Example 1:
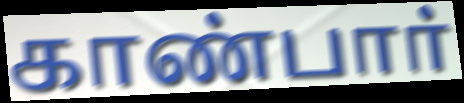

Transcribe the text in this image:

காண்பார்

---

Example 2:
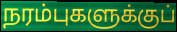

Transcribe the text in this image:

நரம்புகளுக்குப்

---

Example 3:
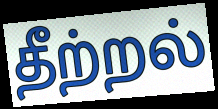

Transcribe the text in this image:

தீற்றல்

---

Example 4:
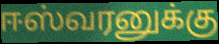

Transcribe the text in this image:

ஈஸ்வரனுக்கு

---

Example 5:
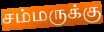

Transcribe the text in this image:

சம்மருக்கு